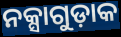
ନକ୍ସାଗୁଡ଼ାକ